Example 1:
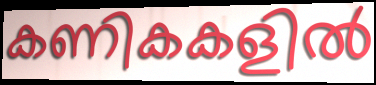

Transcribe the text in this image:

കണികകളിൽ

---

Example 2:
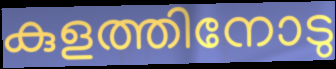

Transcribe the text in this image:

കുളത്തിനോടു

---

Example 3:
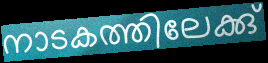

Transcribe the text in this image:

നാടകത്തിലേക്കു്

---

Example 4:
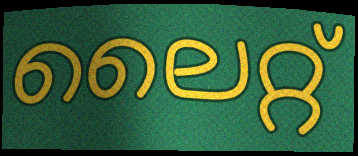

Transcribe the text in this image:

ലൈറ്റ്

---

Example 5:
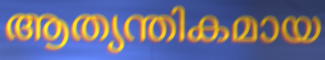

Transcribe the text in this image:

ആത്യന്തികമായ